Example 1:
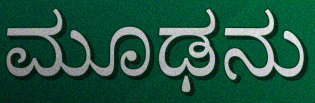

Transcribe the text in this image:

ಮೂಢನು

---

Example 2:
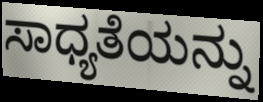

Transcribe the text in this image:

ಸಾಧ್ಯತೆಯನ್ನು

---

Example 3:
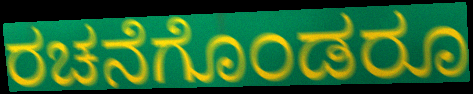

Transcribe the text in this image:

ರಚನೆಗೊಂಡರೂ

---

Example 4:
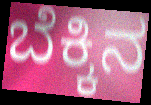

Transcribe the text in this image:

ಬೆಕ್ಕಿನ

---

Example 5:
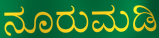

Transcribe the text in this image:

ನೂರುಮಡಿ